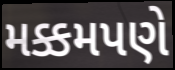
મક્કમપણે